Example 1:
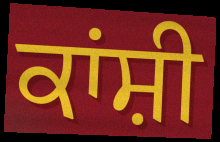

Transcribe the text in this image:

ਕਾਂਸ਼ੀ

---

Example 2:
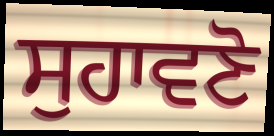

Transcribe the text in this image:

ਸੁਹਾਵਣੋ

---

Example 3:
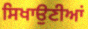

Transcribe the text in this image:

ਸਿਖਾਉਣੀਆਂ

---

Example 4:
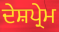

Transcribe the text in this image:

ਦੇਸ਼ਪ੍ਰੇਮ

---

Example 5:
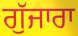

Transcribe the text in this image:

ਗੁੱਜਾਰਾ